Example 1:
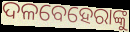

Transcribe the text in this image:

ଦଳବେହେରାଙ୍କୁ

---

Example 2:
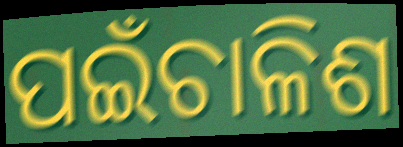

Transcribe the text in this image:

ପଇଁଚାଳିଶ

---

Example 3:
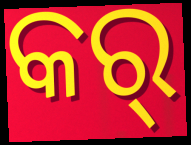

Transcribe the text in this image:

କର୍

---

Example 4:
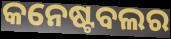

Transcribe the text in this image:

କନେଷ୍ଟବଲର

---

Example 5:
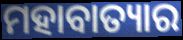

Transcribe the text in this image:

ମହାବାତ୍ୟାର